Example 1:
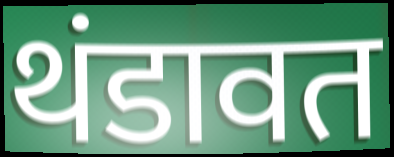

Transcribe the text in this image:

थंडावत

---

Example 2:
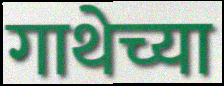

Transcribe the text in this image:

गाथेच्या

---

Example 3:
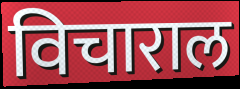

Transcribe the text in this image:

विचाराल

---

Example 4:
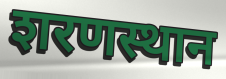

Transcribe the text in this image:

शरणस्थान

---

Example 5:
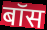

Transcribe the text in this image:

बॉस